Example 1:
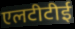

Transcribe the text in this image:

एलटीटीई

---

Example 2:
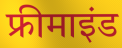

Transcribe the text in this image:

फ्रीमाइंड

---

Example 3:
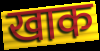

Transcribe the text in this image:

खाक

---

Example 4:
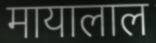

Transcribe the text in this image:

मायालाल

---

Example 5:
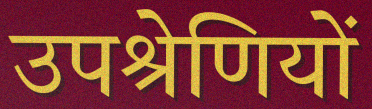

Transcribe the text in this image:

उपश्रेणियों